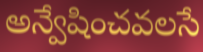
అన్వేషించవలసే